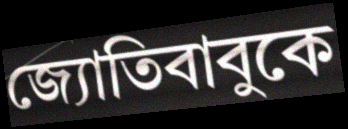
জ্যোতিবাবুকে